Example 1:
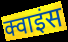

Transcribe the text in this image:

क्वाइंस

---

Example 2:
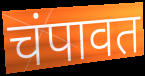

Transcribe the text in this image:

चंपावत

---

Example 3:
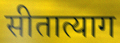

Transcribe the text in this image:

सीतात्याग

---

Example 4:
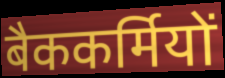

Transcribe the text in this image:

बैककर्मियों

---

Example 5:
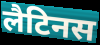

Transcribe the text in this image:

लैटिनस